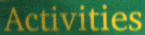
Activities